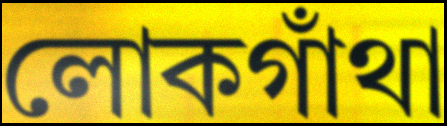
লোকগাঁথা